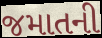
જમાતની